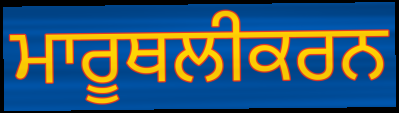
ਮਾਰੂਥਲੀਕਰਨ